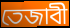
তেজাবী